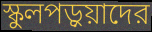
স্কুলপড়ুয়াদের